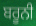
ਬਰੂਨੀ